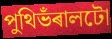
পুথিভঁৰালটো